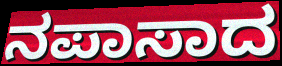
ನಪಾಸಾದ